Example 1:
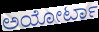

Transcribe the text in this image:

ಅಯೋರ್ಟಾ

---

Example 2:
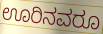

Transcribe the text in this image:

ಊರಿನವರೂ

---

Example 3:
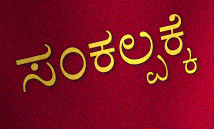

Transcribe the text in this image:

ಸಂಕಲ್ಪಕ್ಕೆ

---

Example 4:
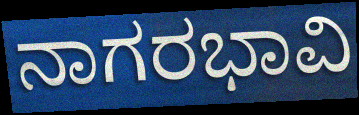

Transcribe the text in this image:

ನಾಗರಭಾವಿ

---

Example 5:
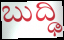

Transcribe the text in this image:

ಬುದ್ಢಿ